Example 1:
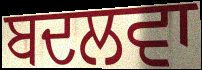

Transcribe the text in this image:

ਬਦਲਵਾ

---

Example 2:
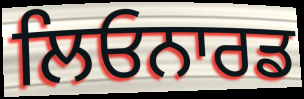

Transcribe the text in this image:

ਲਿਓਨਾਰਡ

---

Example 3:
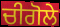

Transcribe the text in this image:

ਚੀਗੋਲੇ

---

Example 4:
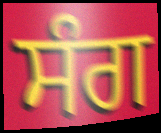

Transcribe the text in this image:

ਸੰਗ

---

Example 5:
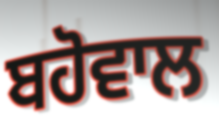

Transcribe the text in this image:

ਬਹੋਵਾਲ